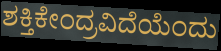
ಶಕ್ತಿಕೇಂದ್ರವಿದೆಯೆಂದು